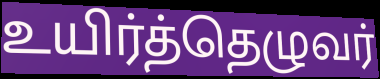
உயிர்த்தெழுவர்